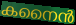
കനൈൻ